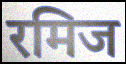
रमिज